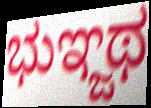
ಭುಞ್ಜಥ